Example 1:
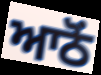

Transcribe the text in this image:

ਆਠੋਂ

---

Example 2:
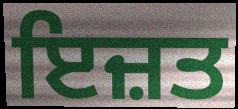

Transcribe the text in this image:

ਇਜ਼ਤ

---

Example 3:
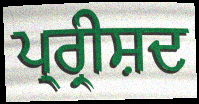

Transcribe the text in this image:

ਪ੍ਰ੍ਰੀਸ਼ਦ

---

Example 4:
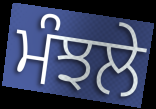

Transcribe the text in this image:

ਮੰਝਲੇ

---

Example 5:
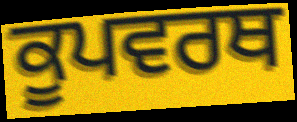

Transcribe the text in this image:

ਕੂਪਵਰਥ